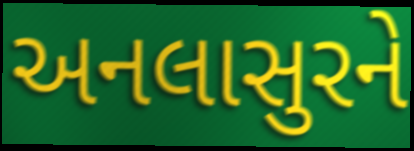
અનલાસુરને